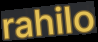
rahilo